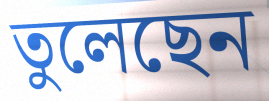
তুলেছেন